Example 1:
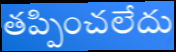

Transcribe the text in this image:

తప్పించలేదు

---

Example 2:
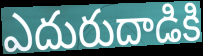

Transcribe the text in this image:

ఎదురుదాడికి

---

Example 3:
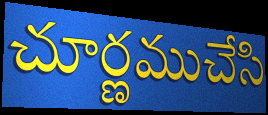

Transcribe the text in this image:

చూర్ణముచేసి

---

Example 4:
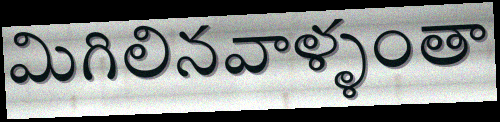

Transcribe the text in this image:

మిగిలినవాళ్ళంతా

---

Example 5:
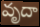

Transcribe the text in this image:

వృదా